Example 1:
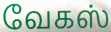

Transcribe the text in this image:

வேகஸ்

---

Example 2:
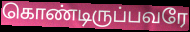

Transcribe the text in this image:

கொண்டிருப்பவரே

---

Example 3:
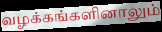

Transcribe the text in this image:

வழக்கங்களினாலும்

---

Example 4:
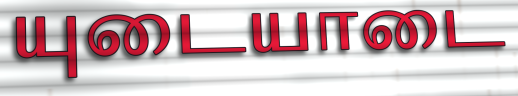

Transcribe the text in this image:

யுடையாடை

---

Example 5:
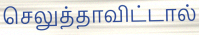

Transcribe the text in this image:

செலுத்தாவிட்டால்